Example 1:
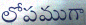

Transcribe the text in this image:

లోపముగా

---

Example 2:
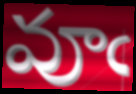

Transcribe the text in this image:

వూఁ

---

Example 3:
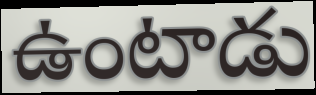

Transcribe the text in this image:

ఉంటాడు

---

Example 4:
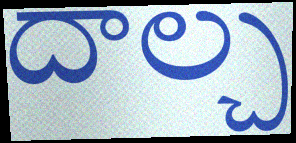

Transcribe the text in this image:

దాల్చ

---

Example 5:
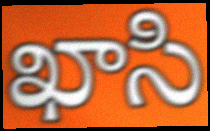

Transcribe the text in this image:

ఖాసి